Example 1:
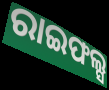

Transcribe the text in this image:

ରାଇଫଲ୍ସ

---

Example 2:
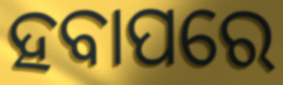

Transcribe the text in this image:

ହବାପରେ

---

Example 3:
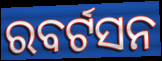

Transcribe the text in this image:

ରବର୍ଟସନ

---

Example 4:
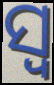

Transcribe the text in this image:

ସ୍ୱ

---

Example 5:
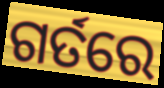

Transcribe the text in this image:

ଗର୍ତରେ